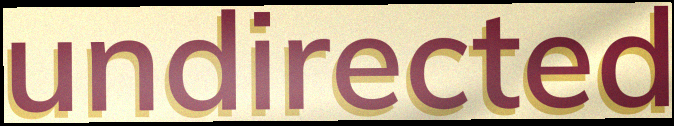
undirected